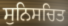
ਸੁਨਿਸਚਿਤ